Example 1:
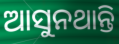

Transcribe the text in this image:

ଆସୁନଥାନ୍ତି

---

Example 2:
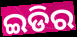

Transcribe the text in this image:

ଇଡିର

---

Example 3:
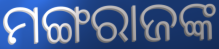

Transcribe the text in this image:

ମଙ୍ଗରାଜଙ୍କ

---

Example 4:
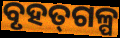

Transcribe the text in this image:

ବୃହତ୍‌ଗଳ୍ପ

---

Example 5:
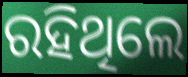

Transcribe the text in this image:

ରହିଥିଲେ